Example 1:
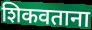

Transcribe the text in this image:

शिकवताना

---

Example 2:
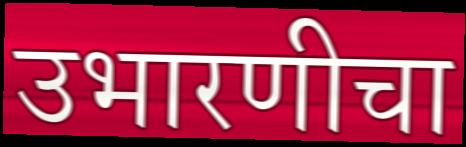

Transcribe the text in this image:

उभारणीचा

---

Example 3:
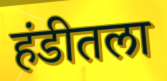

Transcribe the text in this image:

हंडीतला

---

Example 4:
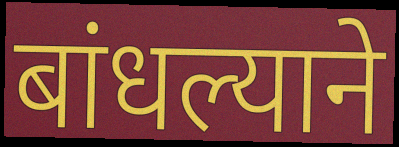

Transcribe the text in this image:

बांधल्याने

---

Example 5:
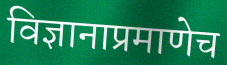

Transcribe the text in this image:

विज्ञानाप्रमाणेच